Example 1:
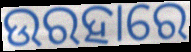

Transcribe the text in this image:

ଉରହାରେ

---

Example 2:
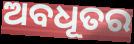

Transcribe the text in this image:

ଅବଧୂତର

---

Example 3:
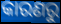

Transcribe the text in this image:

କାରଣରୁ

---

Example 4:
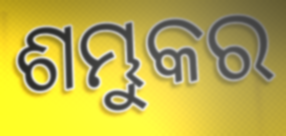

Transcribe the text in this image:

ଶମ୍ଭୁକର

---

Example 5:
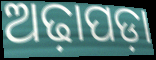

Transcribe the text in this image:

ଅଢ଼ାପଡ଼ା